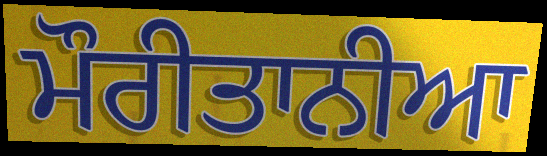
ਮੌਰੀਤਾਨੀਆ